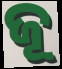
ଜୂ